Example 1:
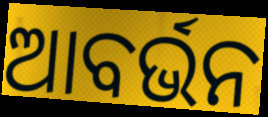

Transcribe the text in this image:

ଆବର୍ଭନ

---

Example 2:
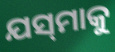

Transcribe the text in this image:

ଯସ୍‌ମାକୁ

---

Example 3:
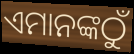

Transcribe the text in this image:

ଏମାନଙ୍କଠୁଁ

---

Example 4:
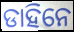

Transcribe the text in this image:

ଡାହିନେ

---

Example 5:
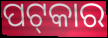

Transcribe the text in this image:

ପଟ୍‌କାର